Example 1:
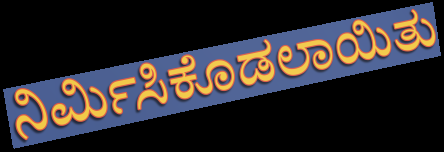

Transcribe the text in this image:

ನಿರ್ಮಿಸಿಕೊಡಲಾಯಿತು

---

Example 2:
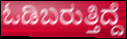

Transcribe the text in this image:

ಓಡಿಬರುತ್ತಿದ್ದೆ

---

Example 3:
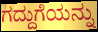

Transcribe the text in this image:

ಗದ್ದುಗೆಯನ್ನು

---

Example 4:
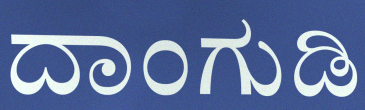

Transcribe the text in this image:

ದಾಂಗುಡಿ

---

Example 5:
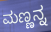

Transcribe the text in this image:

ಮಣ್ಣನ್ನ